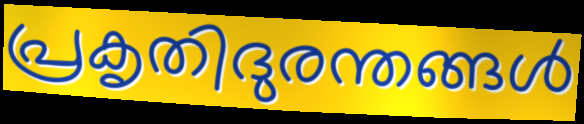
പ്രകൃതിദുരന്തങ്ങൾ